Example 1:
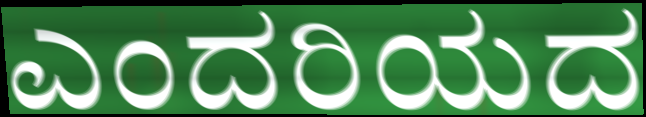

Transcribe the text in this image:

ಎಂದರಿಯದ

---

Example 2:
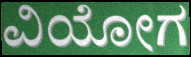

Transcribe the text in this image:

ವಿಯೋಗ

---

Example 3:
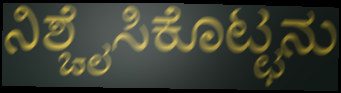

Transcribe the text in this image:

ನಿಶ್ಚೈಸಿಕೊಟ್ಟನು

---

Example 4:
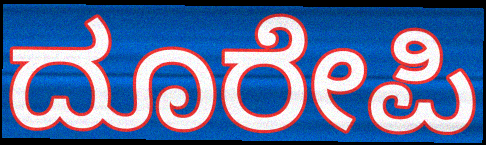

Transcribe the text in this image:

ದೂರೇಪಿ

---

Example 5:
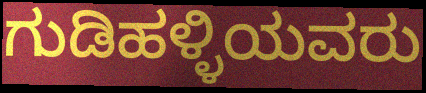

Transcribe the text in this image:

ಗುಡಿಹಳ್ಳಿಯವರು